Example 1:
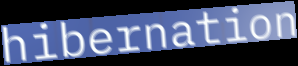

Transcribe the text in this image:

hibernation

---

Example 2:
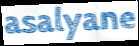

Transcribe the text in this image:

asalyane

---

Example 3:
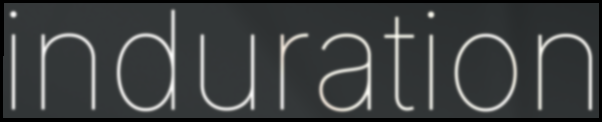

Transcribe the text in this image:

induration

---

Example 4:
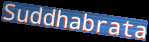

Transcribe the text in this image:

Suddhabrata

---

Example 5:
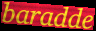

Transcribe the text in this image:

baradde